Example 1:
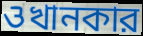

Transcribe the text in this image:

ওখানকার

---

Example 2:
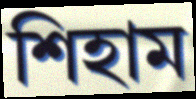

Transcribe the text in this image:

শিহাম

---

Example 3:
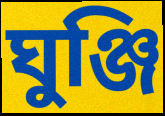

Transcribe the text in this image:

ঘুঞ্জি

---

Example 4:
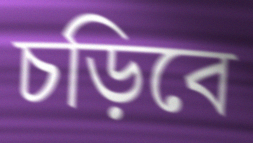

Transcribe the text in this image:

চড়িবে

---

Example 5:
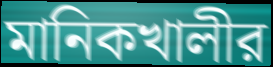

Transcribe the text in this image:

মানিকখালীর